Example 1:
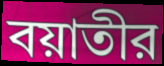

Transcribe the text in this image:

বয়াতীর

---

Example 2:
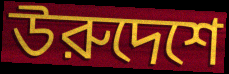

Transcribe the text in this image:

উরুদেশে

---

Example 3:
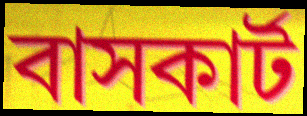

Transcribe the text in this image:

বাসকার্ট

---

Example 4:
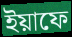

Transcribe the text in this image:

ইয়াফে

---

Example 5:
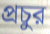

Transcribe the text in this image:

প্রচুর